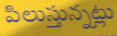
పిలుస్తున్నట్లు